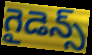
గైడెన్స్